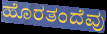
ಹೊರತಂದೆವು